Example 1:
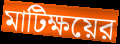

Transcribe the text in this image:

মাটিক্ষয়ের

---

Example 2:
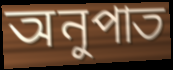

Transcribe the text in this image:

অনুপাত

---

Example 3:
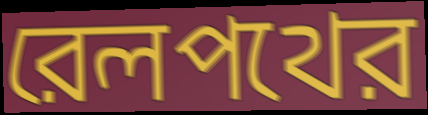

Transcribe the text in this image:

রেলপথের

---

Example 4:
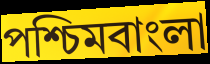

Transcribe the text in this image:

পশ্চিমবাংলা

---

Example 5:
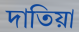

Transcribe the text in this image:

দাতিয়া